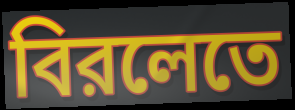
বিরলেতে